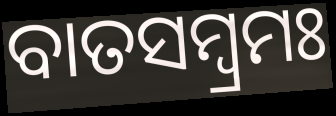
ବାତସମ୍ବ୍ରମଃ